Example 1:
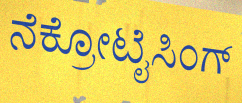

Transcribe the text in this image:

ನೆಕ್ರೋಟೈಸಿಂಗ್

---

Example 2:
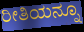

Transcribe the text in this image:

ರೀತಿಯನ್ನೂ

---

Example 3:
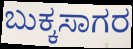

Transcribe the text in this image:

ಬುಕ್ಕಸಾಗರ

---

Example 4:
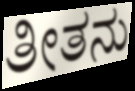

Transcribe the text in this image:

ತೀತನು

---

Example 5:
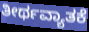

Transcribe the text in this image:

ತೀರ್ಥವ್ಯಾತಕೆ